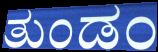
ತುಂಡಂ